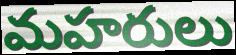
మహరులు